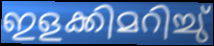
ഇളക്കിമറിച്ചു്